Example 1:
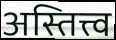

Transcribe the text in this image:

अस्तित्त्व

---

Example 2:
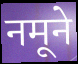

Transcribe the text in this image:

नमूने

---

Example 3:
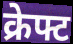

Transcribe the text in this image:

क्रेफ्ट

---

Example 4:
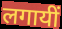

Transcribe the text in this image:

लगायीं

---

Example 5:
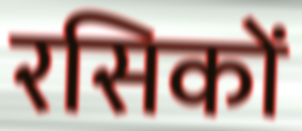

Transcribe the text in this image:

रसिकों